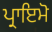
ਪ੍ਰਾਇਮੋ